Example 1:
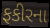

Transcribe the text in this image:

ફકીરના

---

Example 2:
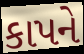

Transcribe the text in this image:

કાપને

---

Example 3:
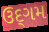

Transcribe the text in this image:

ઉદ્‌ગમ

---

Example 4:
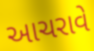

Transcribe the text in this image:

આચરાવે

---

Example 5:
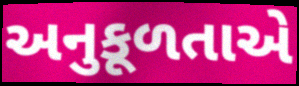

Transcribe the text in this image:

અનુકૂળતાએ